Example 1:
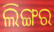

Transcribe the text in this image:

ଲିଙ୍ଗର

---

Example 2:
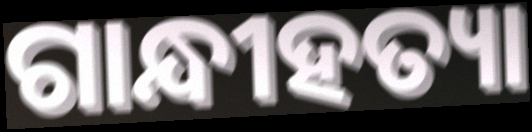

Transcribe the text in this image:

ଗାନ୍ଧୀହତ୍ୟା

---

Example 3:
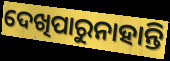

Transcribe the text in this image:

ଦେଖିପାରୁନାହାନ୍ତି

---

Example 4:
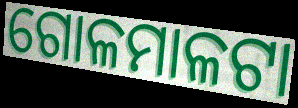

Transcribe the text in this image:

ଗୋଳମାଳଟା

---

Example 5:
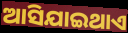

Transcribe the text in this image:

ଆସିଯାଇଥାଏ